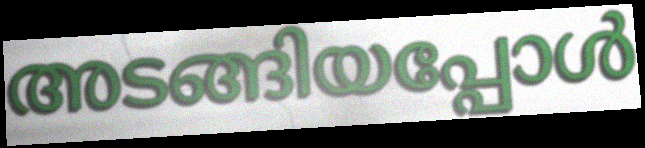
അടങ്ങിയപ്പോൾ